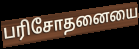
பரிசோதனையை